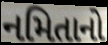
નમિતાનો